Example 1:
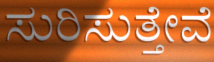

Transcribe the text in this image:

ಸುರಿಸುತ್ತೇವೆ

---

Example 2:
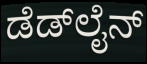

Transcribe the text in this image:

ಡೆಡ್‍ಲೈನ್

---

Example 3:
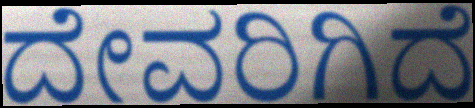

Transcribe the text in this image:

ದೇವರಿಗಿದೆ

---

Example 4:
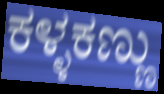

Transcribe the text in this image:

ಕಳ್ಳಕಣ್ಣು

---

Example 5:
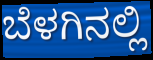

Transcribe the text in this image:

ಬೆಳಗಿನಲ್ಲಿ